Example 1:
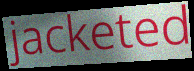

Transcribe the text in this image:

jacketed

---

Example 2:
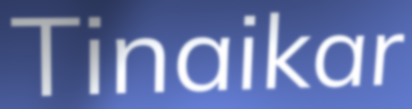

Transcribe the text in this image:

Tinaikar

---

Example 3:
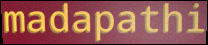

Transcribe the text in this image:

madapathi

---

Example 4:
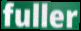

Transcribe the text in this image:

fuller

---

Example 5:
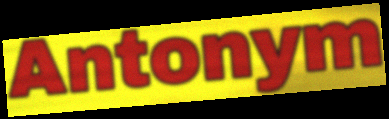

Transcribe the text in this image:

Antonym